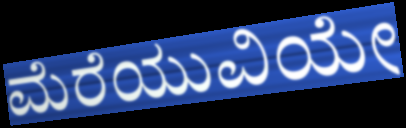
ಮೆರೆಯುವಿಯೇ